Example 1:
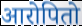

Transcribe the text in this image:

आरोपितो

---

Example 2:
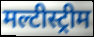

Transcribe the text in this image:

मल्टीस्ट्रीम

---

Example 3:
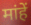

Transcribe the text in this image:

मांहें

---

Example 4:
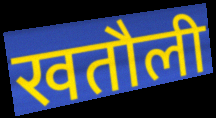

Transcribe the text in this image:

खतौली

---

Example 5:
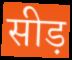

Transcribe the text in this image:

सीड़